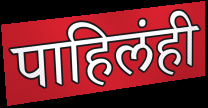
पाहिलंही